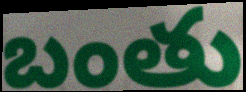
బంతు